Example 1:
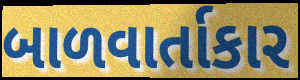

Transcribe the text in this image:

બાળવાર્તાકાર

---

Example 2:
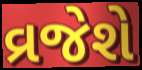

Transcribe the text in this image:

વ્રજેશે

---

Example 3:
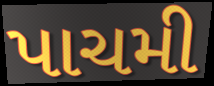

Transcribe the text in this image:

પાચમી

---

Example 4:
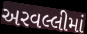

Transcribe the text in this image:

અરવલ્લીમાં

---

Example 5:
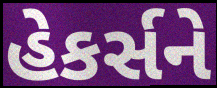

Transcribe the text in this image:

હેકર્સને